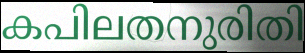
കപിലതനുരിതി